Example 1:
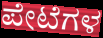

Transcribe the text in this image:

ಪೇಟೆಗಳ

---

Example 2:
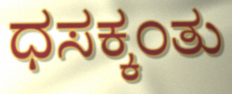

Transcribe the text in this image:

ಧಸಕ್ಕಂತು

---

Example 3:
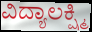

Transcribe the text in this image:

ವಿದ್ಯಾಲಕ್ಷ್ಮಿ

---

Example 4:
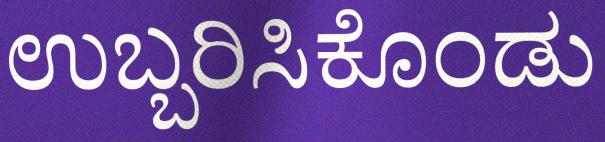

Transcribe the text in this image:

ಉಬ್ಬರಿಸಿಕೊಂಡು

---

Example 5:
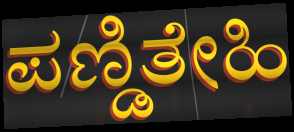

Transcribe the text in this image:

ಪಣ್ಡಿತೇಹಿ